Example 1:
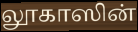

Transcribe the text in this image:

லூகாஸின்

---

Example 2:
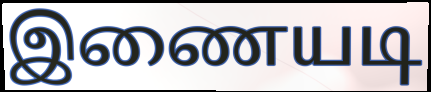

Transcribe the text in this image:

இணையடி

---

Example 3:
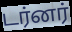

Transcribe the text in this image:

டர்னர்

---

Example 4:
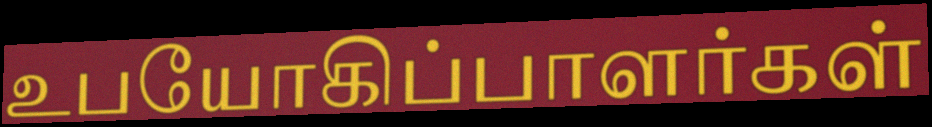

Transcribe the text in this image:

உபயோகிப்பாளர்கள்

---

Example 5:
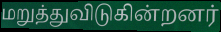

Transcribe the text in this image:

மறுத்துவிடுகின்றனர்